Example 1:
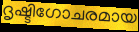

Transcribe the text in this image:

ദൃഷ്ടിഗോചരമായ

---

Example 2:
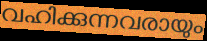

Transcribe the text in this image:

വഹിക്കുന്നവരായും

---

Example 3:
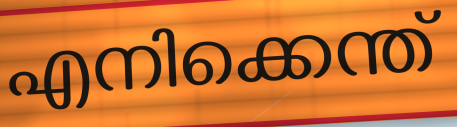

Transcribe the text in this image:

എനിക്കെന്ത്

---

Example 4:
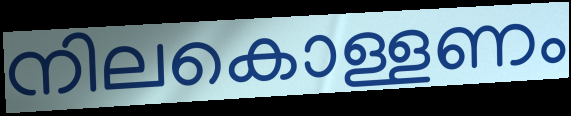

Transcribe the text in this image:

നിലകൊള്ളണം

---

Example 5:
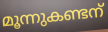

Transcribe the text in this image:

മൂന്നുകണ്ടന്